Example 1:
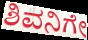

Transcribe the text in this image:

ಶಿವನಿಗೇ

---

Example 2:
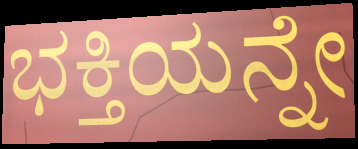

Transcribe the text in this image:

ಭಕ್ತಿಯನ್ನೇ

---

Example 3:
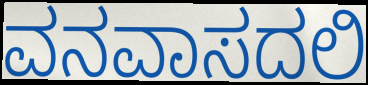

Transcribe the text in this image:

ವನವಾಸದಲಿ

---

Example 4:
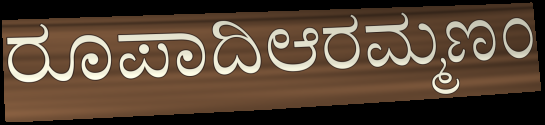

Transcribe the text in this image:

ರೂಪಾದಿಆರಮ್ಮಣಂ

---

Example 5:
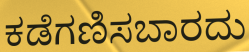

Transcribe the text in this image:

ಕಡೆಗಣಿಸಬಾರದು